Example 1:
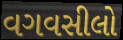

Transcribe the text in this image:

વગવસીલો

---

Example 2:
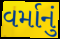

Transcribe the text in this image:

વર્માનું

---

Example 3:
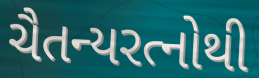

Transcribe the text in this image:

ચૈતન્યરત્નોથી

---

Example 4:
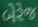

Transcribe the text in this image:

બેરેજ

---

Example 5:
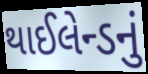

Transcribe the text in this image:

થાઈલેન્ડનું